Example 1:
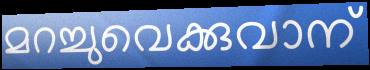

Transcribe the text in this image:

മറച്ചുവെക്കുവാന്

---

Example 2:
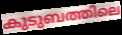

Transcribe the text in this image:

കുടുബത്തിലെ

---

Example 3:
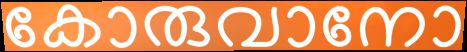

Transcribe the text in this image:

കോരുവാനോ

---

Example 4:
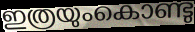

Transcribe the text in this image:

ഇത്രയുംകൊണ്ടു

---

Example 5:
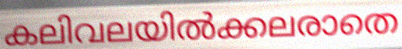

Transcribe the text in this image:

കലിവലയിൽക്കലരാതെ